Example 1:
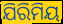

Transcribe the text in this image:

ଯିରିମିୟ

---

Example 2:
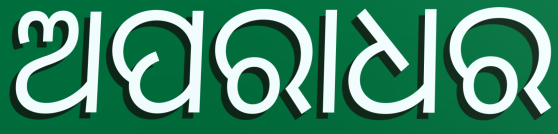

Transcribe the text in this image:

ଅପରାଧର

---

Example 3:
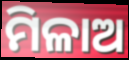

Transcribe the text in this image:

ମିଳାଅ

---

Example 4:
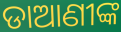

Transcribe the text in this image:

ଡାଆଣୀଙ୍କ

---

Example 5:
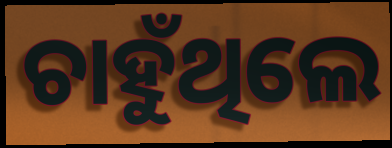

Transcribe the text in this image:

ଚାହୁଁଥିଲେ